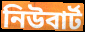
নিউবার্ট